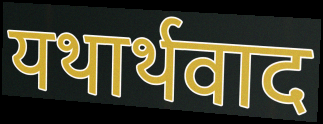
यथार्थवाद